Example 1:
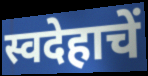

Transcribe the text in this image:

स्वदेहाचें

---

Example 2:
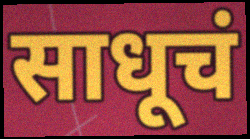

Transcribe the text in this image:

साधूचं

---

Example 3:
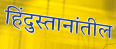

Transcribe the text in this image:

हिंदुस्तानांतील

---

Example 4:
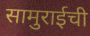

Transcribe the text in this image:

सामुराईची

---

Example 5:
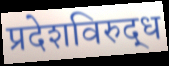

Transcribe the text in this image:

प्रदेशविरुद्ध